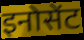
इनोसेंट